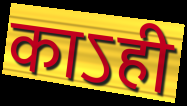
काऽही